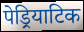
पेड्रियाटिक